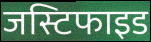
जस्टिफाइड